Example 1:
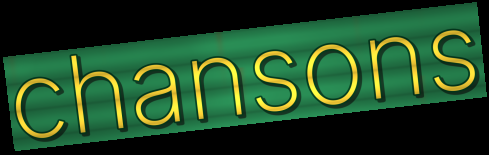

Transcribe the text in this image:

chansons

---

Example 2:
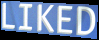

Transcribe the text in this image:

LIKED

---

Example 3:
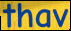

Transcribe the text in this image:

thav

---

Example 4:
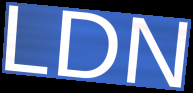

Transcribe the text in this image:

LDN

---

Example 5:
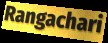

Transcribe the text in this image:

Rangachari